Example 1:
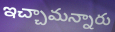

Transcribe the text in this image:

ఇచ్చామన్నారు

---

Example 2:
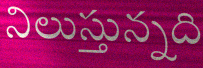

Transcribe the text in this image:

నిలుస్తున్నది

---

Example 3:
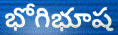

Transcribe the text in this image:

భోగిభూష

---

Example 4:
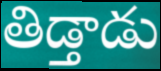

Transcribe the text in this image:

తిడ్తాడు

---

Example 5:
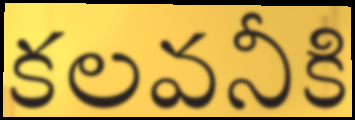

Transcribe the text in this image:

కలవనీకి